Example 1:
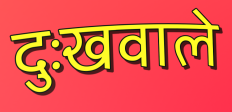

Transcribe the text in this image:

दुःखवाले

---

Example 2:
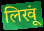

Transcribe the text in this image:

लिखूं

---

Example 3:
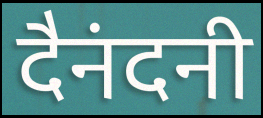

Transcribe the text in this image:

दैनंदनी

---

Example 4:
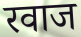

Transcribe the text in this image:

रवाज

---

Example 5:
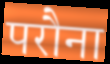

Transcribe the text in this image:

परौना